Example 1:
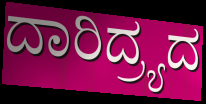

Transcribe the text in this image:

ದಾರಿದ್ರ್ಯದ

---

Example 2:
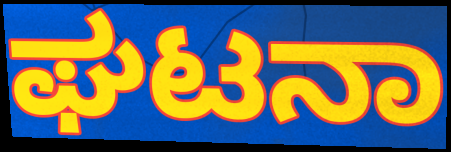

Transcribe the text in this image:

ಘಟನಾ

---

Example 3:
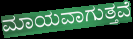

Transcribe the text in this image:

ಮಾಯವಾಗುತ್ತವೆ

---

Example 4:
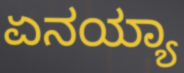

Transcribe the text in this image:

ಏನಯ್ಯಾ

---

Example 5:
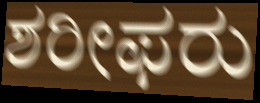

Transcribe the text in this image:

ಶರೀಫರು